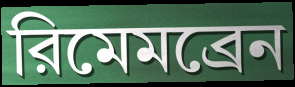
রিমেমব্রেন